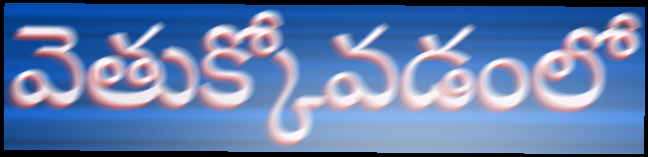
వెతుక్కోవడంలో